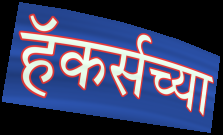
हॅकर्सच्या